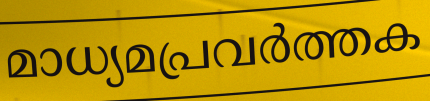
മാധ്യമപ്രവർത്തക